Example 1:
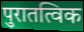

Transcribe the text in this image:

पुरातत्विक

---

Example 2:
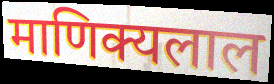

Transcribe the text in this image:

माणिक्यलाल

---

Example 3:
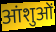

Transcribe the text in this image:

आंशुओं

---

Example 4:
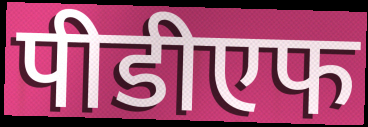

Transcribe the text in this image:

पीडीएफ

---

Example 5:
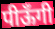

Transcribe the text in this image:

पीऊँगी